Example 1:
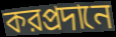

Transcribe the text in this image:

করপ্রদানে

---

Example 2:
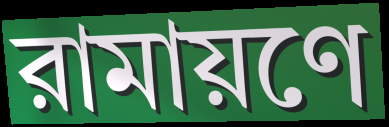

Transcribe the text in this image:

রামায়ণে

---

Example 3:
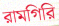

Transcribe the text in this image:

রামগিরি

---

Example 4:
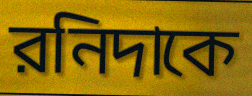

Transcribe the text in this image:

রনিদাকে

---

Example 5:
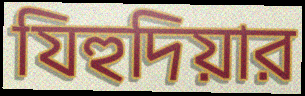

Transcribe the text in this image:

যিহুদিয়ার